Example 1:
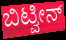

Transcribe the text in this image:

ಬಿಟ್ವೀನ್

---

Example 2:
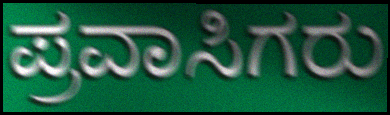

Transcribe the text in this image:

ಪ್ರವಾಸಿಗರು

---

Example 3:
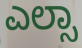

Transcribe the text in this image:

ಎಲ್ಸಾ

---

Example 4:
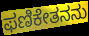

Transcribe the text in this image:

ಫಣಿಕೇತನನು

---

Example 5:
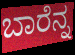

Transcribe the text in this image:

ಬಾರೆನ್ನ